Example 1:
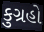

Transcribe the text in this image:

કુગ્રહો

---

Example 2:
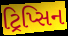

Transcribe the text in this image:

ટ્રિપ્સિન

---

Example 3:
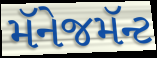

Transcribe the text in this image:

મૅનેજમૅન્ટ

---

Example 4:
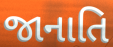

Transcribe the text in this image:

જાનાતિ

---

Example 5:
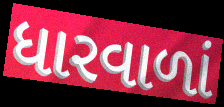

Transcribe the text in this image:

ધારવાળાં